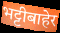
भट्टीबाहेर